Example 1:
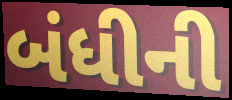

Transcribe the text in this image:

બંધીની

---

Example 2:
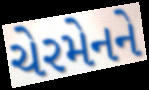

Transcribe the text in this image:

ચેરમેનને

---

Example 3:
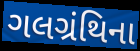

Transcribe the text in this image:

ગલગ્રંથિના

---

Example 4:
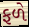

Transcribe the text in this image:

ફળે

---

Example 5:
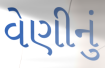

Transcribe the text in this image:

વેણીનું